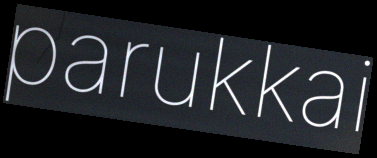
parukkai